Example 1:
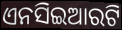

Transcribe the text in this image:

ଏନସିଇଆରଟି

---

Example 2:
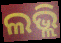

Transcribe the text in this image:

ଲଭ୍ଲି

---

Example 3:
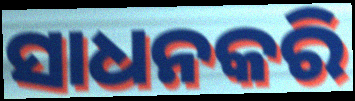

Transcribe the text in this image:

ସାଧନକରି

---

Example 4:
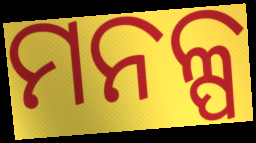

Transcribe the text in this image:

ମନଳ୍ପ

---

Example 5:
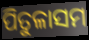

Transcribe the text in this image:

ପିତୁଳାସମ